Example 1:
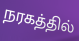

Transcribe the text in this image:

நரகத்தில்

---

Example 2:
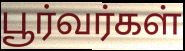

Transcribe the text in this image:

பூர்வர்கள்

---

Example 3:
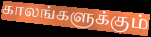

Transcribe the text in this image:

காலங்களுக்கும்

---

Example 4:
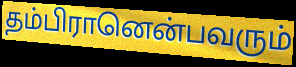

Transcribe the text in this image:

தம்பிரானென்பவரும்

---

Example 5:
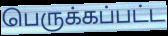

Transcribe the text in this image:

பெருக்கப்பட்ட